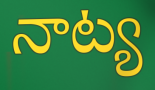
నాట్య